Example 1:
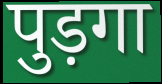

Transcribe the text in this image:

पुड़गा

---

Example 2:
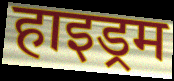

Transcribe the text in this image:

हाइड्रम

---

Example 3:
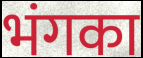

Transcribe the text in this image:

भंगका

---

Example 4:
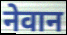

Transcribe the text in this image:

नेवान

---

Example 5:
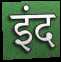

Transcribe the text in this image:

इंद